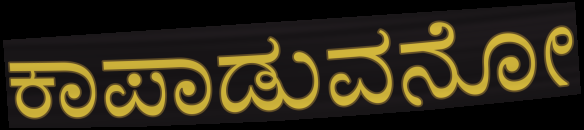
ಕಾಪಾಡುವನೋ